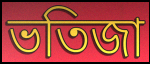
ভতিজা